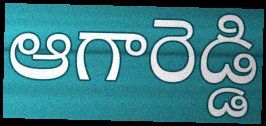
ఆగారెడ్డి